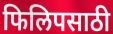
फिलिपसाठी